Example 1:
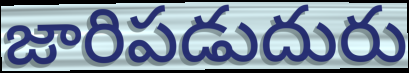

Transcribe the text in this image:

జారిపడుదురు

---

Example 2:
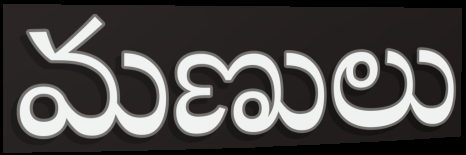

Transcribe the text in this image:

మణులు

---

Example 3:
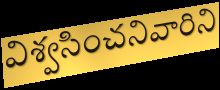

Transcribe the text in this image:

విశ్వసించనివారిని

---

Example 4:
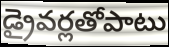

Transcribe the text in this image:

డ్రైవర్లతోపాటు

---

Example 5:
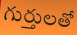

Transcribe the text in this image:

గుర్తులతో